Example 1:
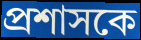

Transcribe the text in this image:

প্ৰশাসকে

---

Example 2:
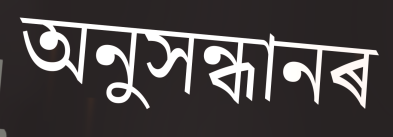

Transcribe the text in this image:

অনুসন্ধানৰ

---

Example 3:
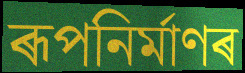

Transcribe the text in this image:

ৰূপনিৰ্মাণৰ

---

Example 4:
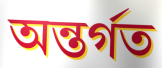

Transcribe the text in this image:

অন্তৰ্গত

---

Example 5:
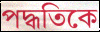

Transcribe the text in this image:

পদ্ধতিকে